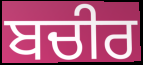
ਬਚੀਰ